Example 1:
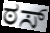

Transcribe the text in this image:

ಠಸ್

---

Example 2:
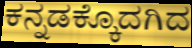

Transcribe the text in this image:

ಕನ್ನಡಕ್ಕೊದಗಿದ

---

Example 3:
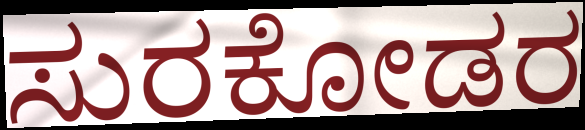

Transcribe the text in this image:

ಸುರಕೋಡರ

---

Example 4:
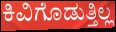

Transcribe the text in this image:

ಕಿವಿಗೊಡುತ್ತಿಲ್ಲ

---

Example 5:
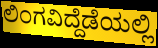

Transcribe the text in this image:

ಲಿಂಗವಿದ್ದೆಡೆಯಲ್ಲಿ